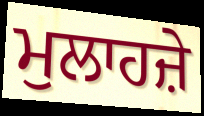
ਮੁਲਾਹਜ਼ੇ